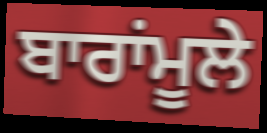
ਬਾਰਾਂਮੂਲੇ